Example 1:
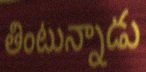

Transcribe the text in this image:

తింటున్నాడు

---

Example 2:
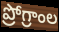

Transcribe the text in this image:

ప్రోగ్రాంల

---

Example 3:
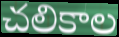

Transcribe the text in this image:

చలికాల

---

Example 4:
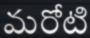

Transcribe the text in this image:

మరోటి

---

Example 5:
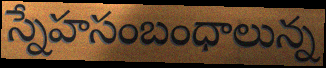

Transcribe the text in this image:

స్నేహసంబంధాలున్న